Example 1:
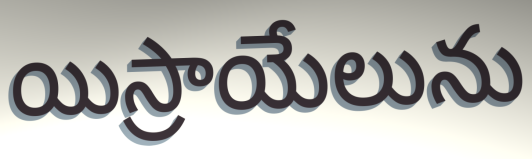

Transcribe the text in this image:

యిస్రాయేలును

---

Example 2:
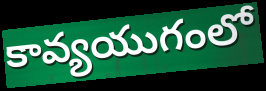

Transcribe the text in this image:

కావ్యయుగంలో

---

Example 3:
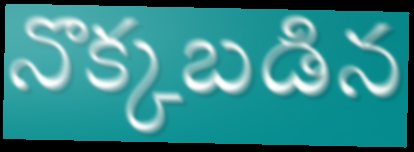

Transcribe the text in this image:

నొక్కబడిన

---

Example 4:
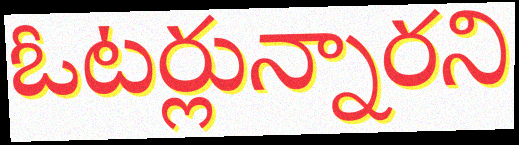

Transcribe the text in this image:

ఓటర్లున్నారని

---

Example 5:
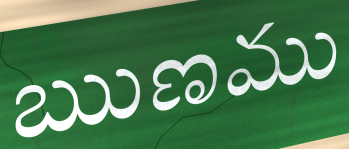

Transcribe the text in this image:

ఋణము